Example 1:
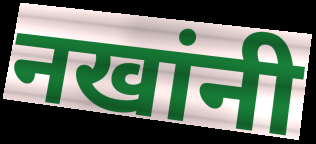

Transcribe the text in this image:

नखांनी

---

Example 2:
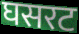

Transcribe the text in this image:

घसरट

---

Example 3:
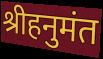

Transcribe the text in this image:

श्रीहनुमंत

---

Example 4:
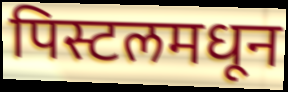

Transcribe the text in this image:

पिस्टलमधून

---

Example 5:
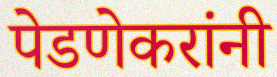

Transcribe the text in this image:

पेडणेकरांनी